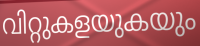
വിറ്റുകളയുകയും